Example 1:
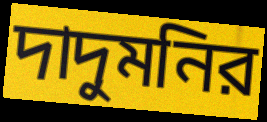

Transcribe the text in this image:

দাদুমনির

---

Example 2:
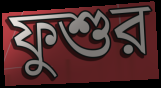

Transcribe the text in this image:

ফুশুর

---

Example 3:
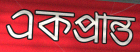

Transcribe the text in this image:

একপ্রান্ত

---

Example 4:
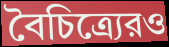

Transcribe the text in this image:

বৈচিত্র্যেরও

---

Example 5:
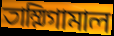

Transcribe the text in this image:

তাম্মিগামাল